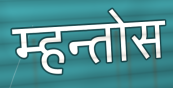
म्हन्तोस